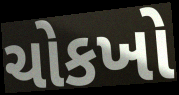
ચોકખો